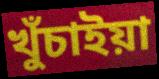
খুঁচাইয়া